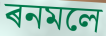
ৰনমলে